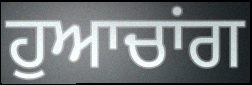
ਹੁਆਚਾਂਗ